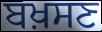
ਬਖ਼ਸਣ